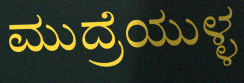
ಮುದ್ರೆಯುಳ್ಳ